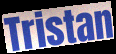
Tristan